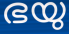
ഭയു